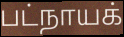
பட்நாயக்